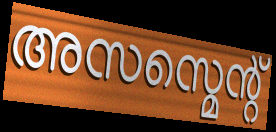
അസസ്മെന്റ്